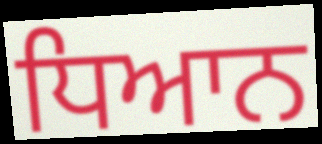
ਧਿਆਨ